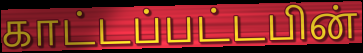
காட்டப்பட்டபின்